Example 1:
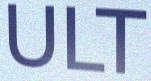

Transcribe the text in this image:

ULT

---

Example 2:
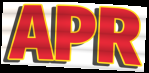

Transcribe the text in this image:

APR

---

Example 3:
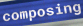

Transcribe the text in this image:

composing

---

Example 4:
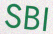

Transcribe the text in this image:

SBI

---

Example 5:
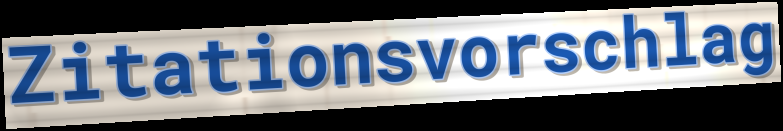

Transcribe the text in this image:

Zitationsvorschlag